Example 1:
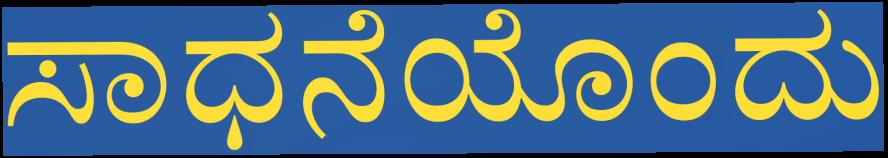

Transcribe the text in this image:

ಸಾಧನೆಯೊಂದು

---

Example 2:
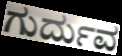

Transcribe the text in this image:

ಗುರ್ದುವ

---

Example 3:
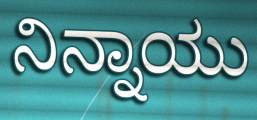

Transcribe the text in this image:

ನಿನ್ನಾಯು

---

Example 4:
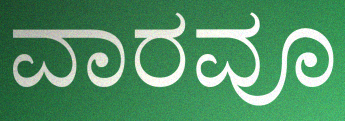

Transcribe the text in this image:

ವಾರವೂ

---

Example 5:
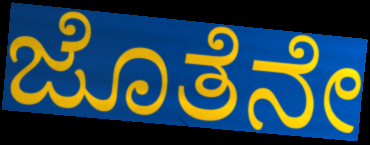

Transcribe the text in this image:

ಜೊತೆನೇ